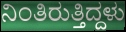
ನಿಂತಿರುತ್ತಿದ್ದಳು